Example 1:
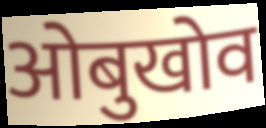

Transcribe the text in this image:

ओबुखोव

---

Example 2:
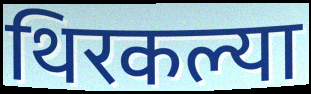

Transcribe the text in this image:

थिरकल्या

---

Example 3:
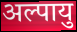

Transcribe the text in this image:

अल्पायु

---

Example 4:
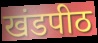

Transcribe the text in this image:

खंडपीठ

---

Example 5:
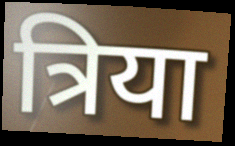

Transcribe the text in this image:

त्रिया